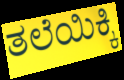
ತಲೆಯಿಕ್ಕಿ